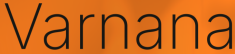
Varnana